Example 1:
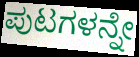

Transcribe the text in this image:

ಪುಟಗಳನ್ನೇ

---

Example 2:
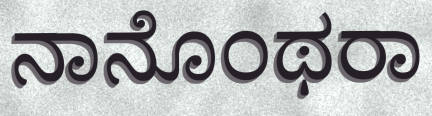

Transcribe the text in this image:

ನಾನೊಂಥರಾ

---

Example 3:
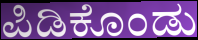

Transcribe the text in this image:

ಪಿಡಿಕೊಂಡು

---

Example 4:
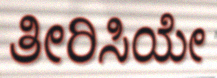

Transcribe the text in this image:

ತೀರಿಸಿಯೇ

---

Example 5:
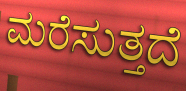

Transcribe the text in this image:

ಮರೆಸುತ್ತದೆ